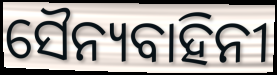
ସୈନ୍ଯବାହିନୀ